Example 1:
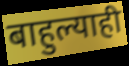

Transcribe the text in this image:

बाहुल्याही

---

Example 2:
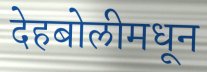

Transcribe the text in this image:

देहबोलीमधून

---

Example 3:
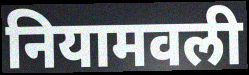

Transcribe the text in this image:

नियामवली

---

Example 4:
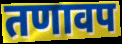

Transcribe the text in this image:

तणावप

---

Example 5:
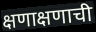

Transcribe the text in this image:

क्षणाक्षणाची